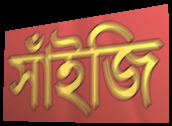
সাঁইজি